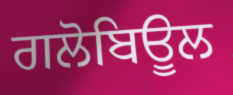
ਗਲੋਬਿਊਲ